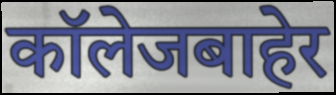
कॉलेजबाहेर